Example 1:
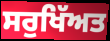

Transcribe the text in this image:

ਸਰੁਖਿੱਅਤ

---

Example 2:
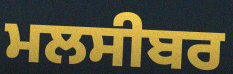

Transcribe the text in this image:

ਮਲਸੀਬਰ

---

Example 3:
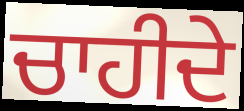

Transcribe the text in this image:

ਚਾਹੀਦੇ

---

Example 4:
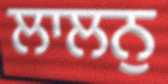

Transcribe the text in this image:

ਲਾਲਨੁ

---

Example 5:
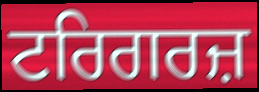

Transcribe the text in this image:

ਟਰਿਗਰਜ਼